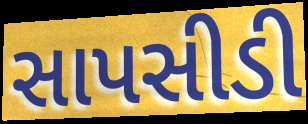
સાપસીડી